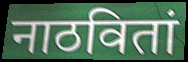
नाठवितां